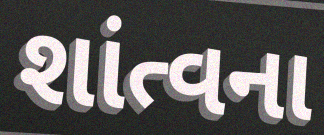
શાંત્વના